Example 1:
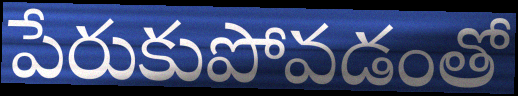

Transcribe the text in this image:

పేరుకుపోవడంతో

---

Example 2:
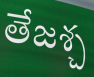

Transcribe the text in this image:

తేజశ్చ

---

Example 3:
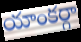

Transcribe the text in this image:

యాంకర్గా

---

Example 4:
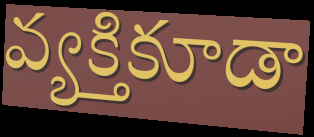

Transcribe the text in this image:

వ్యక్తికూడా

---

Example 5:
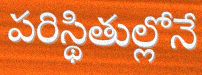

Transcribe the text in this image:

పరిస్థితుల్లోనే